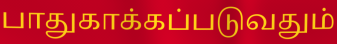
பாதுகாக்கப்படுவதும்